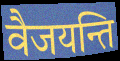
वैजयन्ति